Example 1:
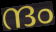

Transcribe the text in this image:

ന്ദം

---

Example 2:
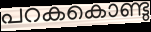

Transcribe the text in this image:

പറകകൊണ്ടു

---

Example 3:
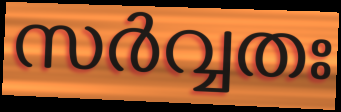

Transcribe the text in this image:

സർവ്വതഃ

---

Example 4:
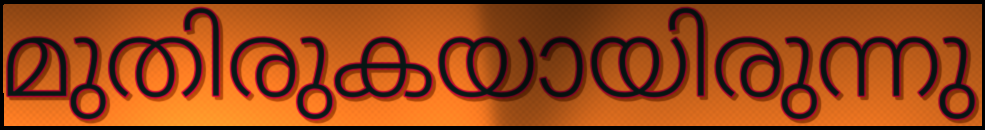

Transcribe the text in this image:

മുതിരുകയായിരുന്നു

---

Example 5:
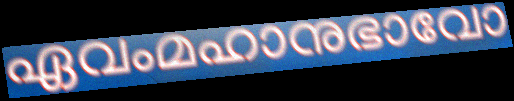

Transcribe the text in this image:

ഏവംമഹാനുഭാവോ